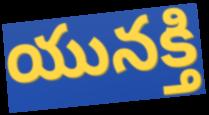
యునక్తి